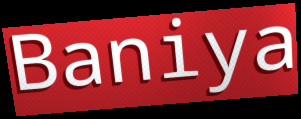
Baniya